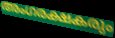
അംഗരക്ഷകരും